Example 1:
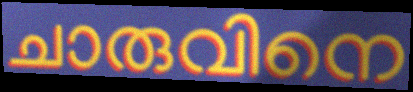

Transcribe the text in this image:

ചാരുവിനെ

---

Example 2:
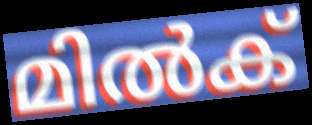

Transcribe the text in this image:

മിൽക്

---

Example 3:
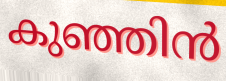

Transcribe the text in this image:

കുഞ്ഞിൻ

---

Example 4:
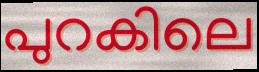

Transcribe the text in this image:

പുറകിലെ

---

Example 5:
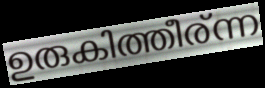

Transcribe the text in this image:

ഉരുകിത്തീര്ന്ന